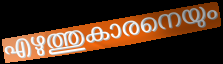
എഴുത്തുകാരനെയും